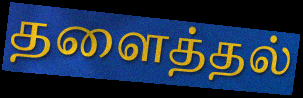
தளைத்தல்